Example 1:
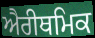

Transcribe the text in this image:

ਐਰੀਥਮਿਕ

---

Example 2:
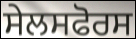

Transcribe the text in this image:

ਸੇਲਸਫੋਰਸ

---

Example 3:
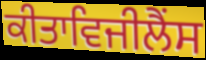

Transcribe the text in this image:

ਕੀਤਾਵਿਜੀਲੈਂਸ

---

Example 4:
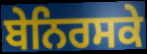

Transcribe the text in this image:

ਬੇਨਿਰਸਕੇ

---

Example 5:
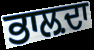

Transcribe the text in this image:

ਭਾਲ਼ਦਾ